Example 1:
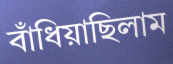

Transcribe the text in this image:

বাঁধিয়াছিলাম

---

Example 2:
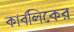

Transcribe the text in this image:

কার্বলিকের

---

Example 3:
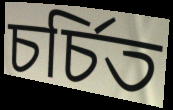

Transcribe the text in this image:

চর্চিত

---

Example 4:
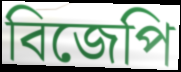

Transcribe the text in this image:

বিজেপি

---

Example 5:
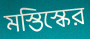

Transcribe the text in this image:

মস্তিস্কের